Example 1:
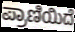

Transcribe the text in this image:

ಪ್ರಾಣಿಯಿದೆ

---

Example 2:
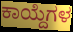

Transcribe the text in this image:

ಕಾಯ್ದೆಗಳ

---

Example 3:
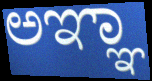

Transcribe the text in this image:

ಅಞ್ಞಾ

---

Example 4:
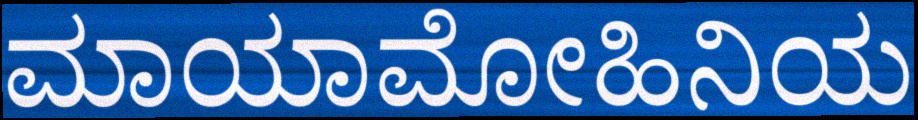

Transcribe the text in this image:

ಮಾಯಾಮೋಹಿನಿಯ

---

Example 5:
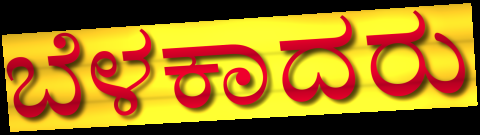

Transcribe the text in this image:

ಬೆಳಕಾದರು